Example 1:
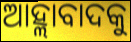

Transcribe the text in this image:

ଆହ୍ଲାବାଦକୁ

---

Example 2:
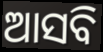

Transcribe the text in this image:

ଆସବି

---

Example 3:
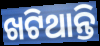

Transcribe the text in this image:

ଖଟିଥାନ୍ତି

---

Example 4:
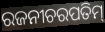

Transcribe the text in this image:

ରଜନୀଚରପତିମ୍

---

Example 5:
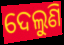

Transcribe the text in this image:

ଦେଲୁଣି